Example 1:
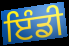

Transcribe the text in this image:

ਇੰਡੀ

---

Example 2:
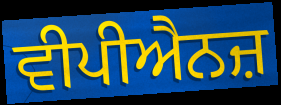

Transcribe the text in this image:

ਵੀਪੀਐਨਜ਼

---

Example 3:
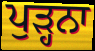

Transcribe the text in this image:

ਪੁੜ੍ਹਨਾ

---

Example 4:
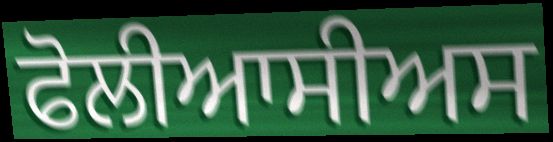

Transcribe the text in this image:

ਫੋਲੀਆਸੀਅਸ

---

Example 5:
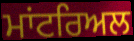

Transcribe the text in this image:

ਮਾਂਟਰਿਅਲ